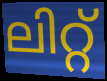
ലിറ്റ്